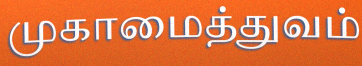
முகாமைத்துவம்